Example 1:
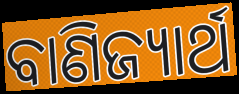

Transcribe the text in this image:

ବାଣିଜ୍ୟାର୍ଥ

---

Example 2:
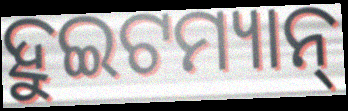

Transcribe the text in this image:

ହୁଇଟମ୍ୟାନ୍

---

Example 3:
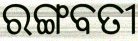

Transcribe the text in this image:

ରଙ୍ଗବତୀ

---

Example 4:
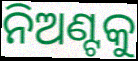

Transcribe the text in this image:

ନିଅଣ୍ଟକୁ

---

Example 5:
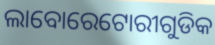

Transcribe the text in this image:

ଲାବୋରେଟୋରୀଗୁଡିକ